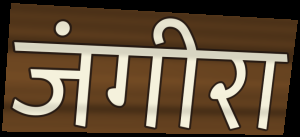
जंगीरा